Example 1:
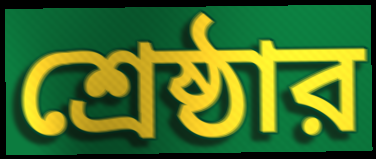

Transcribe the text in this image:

শ্রেষ্ঠার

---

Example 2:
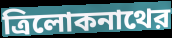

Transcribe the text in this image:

ত্রিলোকনাথের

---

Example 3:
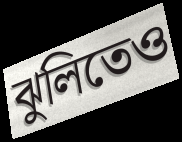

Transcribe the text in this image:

ঝুলিতেও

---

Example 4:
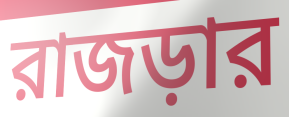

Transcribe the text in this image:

রাজড়ার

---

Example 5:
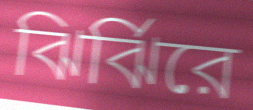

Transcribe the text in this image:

ঝির্ঝিরে